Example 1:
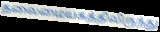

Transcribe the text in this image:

தலைமையகத்திலிருந்து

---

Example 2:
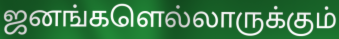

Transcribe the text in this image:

ஜனங்களெல்லாருக்கும்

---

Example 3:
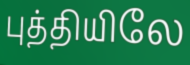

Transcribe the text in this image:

புத்தியிலே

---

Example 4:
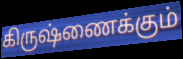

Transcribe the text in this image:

கிருஷ்ணைக்கும்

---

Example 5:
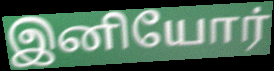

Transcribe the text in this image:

இனியோர்